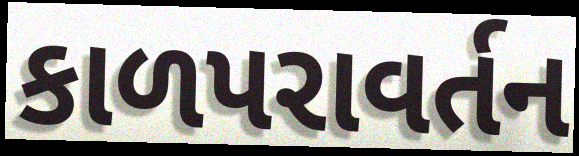
કાળપરાવર્તન